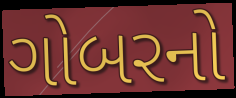
ગોબરનો